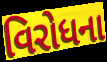
વિરોધના